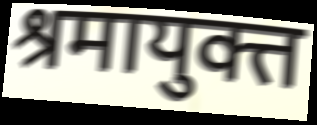
श्रमायुक्त